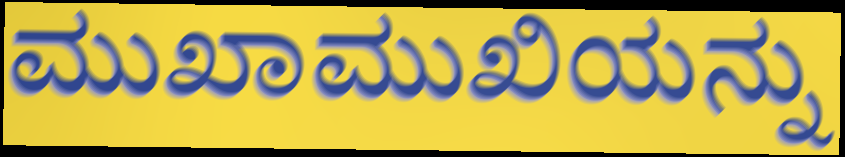
ಮುಖಾಮುಖಿಯನ್ನು